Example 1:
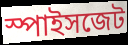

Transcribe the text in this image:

স্পাইসজেট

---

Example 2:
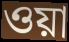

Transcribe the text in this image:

ওয়া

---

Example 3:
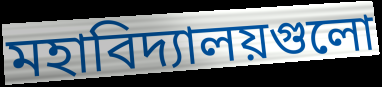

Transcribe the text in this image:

মহাবিদ্যালয়গুলো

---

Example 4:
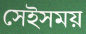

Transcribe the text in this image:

সেইসময়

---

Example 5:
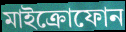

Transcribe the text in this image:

মাইক্রোফোন